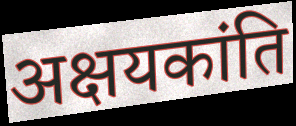
अक्षयकांति